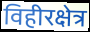
विहीरक्षेत्र